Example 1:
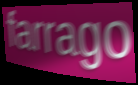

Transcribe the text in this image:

farrago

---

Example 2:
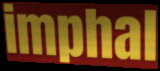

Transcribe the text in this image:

imphal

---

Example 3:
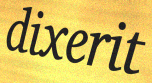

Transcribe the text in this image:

dixerit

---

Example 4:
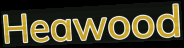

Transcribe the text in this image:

Heawood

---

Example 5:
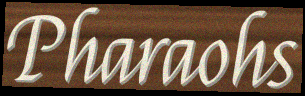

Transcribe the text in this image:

Pharaohs